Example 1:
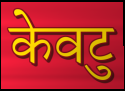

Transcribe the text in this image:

केवटु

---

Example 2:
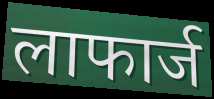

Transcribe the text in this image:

लाफार्ज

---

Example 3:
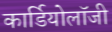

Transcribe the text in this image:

कार्डियोलॉजी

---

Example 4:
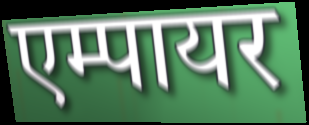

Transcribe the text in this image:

एम्पायर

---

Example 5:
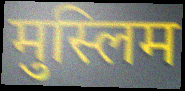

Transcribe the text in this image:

मुस्‍लिम